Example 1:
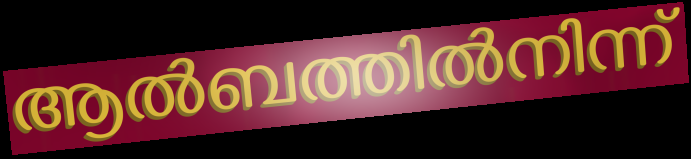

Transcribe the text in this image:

ആൽബത്തിൽനിന്ന്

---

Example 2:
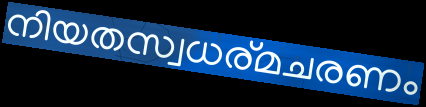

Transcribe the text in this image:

നിയതസ്വധര്മചരണം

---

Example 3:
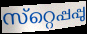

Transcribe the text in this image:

സ്‌റ്റെപ്പപ്പു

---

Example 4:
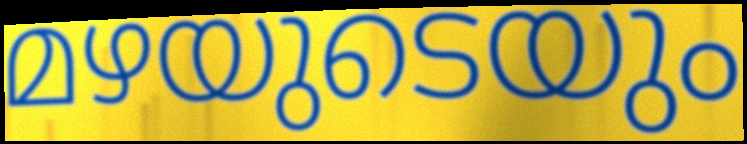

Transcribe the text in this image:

മഴയുടെയും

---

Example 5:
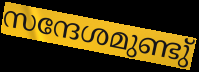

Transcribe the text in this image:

സന്ദേശമുണ്ടു്